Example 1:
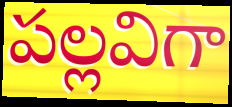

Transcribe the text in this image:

పల్లవిగా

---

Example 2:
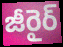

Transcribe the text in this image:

జీరైర్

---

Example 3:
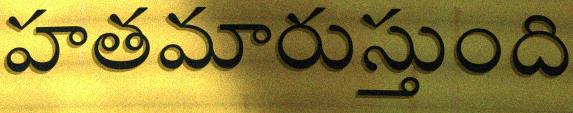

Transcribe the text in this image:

హతమారుస్తుంది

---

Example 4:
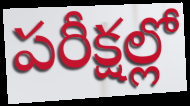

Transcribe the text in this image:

పరీక్షల్లో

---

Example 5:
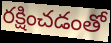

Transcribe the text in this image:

రక్షించడంతో